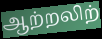
ஆற்றலிற்